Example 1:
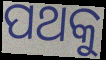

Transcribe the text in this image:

ପଥକୁ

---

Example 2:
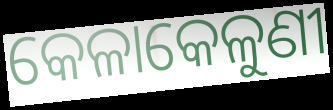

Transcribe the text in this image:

କେଳାକେଳୁଣୀ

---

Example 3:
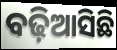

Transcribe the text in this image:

ବଢ଼ିଆସିଛି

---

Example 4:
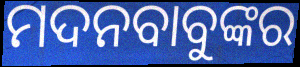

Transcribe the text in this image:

ମଦନବାବୁଙ୍କର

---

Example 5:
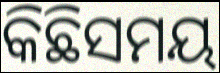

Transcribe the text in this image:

କିଛିସମୟ